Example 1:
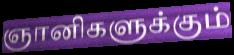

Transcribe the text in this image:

ஞானிகளுக்கும்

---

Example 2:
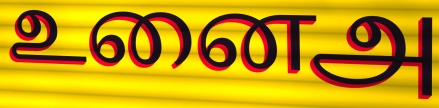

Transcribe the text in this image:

உனைஅ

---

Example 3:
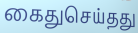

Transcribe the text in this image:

கைதுசெய்தது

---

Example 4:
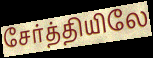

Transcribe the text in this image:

சேர்த்தியிலே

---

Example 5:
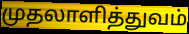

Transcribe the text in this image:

முதலாளித்துவம்